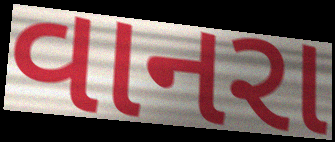
વાનરા